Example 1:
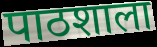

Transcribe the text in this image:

पाठशाला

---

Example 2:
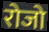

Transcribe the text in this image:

रोजो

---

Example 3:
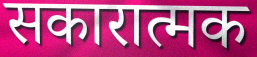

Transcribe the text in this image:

सकारात्मक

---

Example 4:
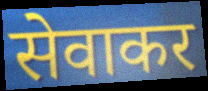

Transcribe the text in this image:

सेवाकर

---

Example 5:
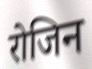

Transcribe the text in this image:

रोजिन